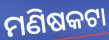
ମଣିଷକଟା